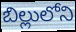
బిల్లులోని